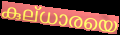
കുല്ധാരയെ